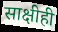
साक्षीही